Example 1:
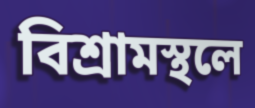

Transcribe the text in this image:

বিশ্রামস্থলে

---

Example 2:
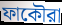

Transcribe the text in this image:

ফাকৌরা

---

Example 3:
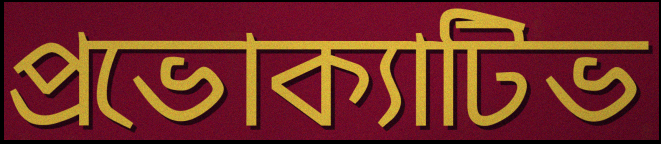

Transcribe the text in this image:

প্রভোক্যাটিভ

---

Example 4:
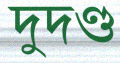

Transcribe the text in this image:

দুদণ্ড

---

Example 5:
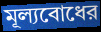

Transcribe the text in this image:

মূল্যবোধের